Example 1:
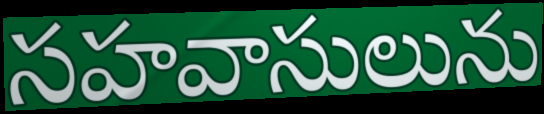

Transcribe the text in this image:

సహవాసులును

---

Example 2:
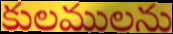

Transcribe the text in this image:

కులములను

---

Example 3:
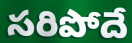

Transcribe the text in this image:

సరిపోదే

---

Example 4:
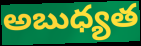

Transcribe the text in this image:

అబుధ్యత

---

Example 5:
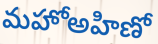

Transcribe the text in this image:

మహోఅహిణో